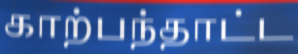
காற்பந்தாட்ட